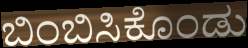
ಬಿಂಬಿಸಿಕೊಂಡು